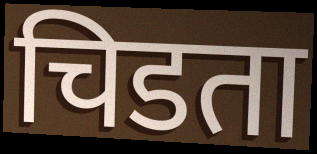
चिडता